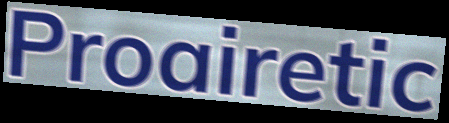
Proairetic